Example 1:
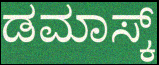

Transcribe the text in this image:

ಡಮಾಸ್ಕ್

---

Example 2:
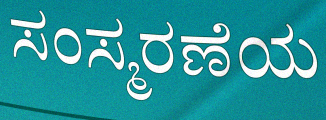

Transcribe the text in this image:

ಸಂಸ್ಮರಣೆಯ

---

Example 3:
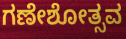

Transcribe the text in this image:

ಗಣೇಶೋತ್ಸವ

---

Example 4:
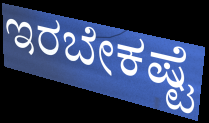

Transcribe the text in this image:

ಇರಬೇಕಷ್ಟೆ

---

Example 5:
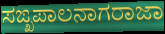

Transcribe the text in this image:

ಸಙ್ಖಪಾಲನಾಗರಾಜಾ